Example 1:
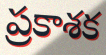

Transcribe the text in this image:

ప్రకాశక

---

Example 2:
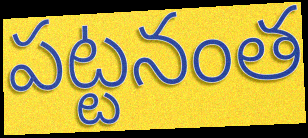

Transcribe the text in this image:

పట్టనంత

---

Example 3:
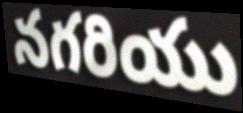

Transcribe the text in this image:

నగరియు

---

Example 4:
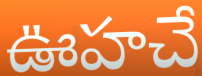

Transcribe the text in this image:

ఊహచే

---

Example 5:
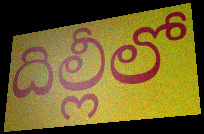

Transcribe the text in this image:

దిల్లీలో